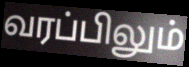
வரப்பிலும்